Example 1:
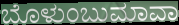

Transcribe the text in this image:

ಬೊಳುಂಬುಮಾವಾ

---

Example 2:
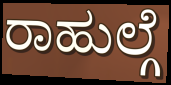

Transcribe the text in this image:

ರಾಹುಲ್ಗೆ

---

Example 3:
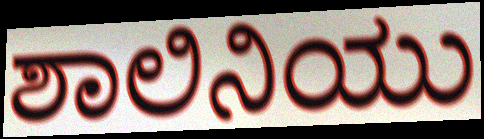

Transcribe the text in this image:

ಶಾಲಿನಿಯು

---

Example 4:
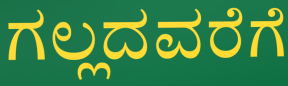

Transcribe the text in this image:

ಗಲ್ಲದವರೆಗೆ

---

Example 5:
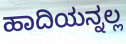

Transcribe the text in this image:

ಹಾದಿಯನ್ನಲ್ಲ